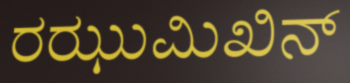
ರಝುಮಿಖಿನ್